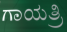
ಗಾಯತ್ರಿ